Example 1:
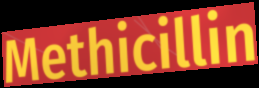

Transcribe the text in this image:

Methicillin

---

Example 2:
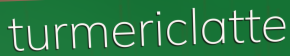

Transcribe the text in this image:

turmericlatte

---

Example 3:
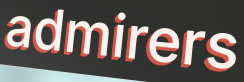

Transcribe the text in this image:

admirers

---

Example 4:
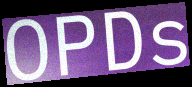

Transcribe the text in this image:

OPDs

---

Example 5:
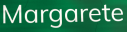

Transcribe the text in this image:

Margarete